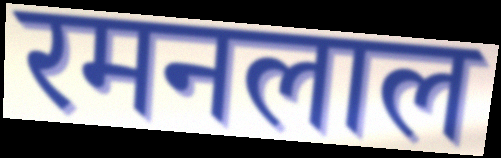
रमनलाल